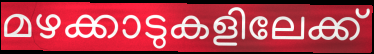
മഴക്കാടുകളിലേക്ക്